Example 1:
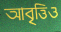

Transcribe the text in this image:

আবৃত্তিও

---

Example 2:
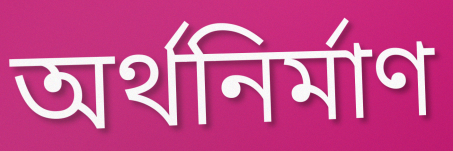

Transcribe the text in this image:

অর্থনির্মাণ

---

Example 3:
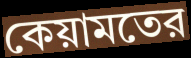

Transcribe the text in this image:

কেয়ামতের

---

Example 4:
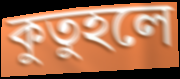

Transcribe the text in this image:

কুতুহলে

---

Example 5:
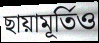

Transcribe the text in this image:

ছায়ামূর্তিও